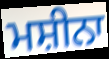
ਮਸ਼ੀਨਾ